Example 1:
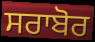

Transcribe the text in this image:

ਸਰਾਬੋਰ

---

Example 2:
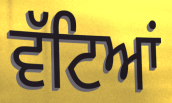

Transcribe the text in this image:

ਵੱਟਿਆਂ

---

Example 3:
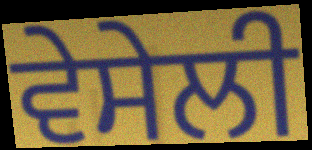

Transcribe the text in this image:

ਵੇਸੇਲੀ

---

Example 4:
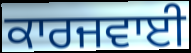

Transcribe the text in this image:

ਕਾਰਜਵਾਈ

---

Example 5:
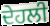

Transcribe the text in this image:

ਦੇਹਲੀ